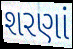
શરણાં